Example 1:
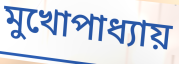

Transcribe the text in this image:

মুখোপাধ্যায়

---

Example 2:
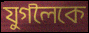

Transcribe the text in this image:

যুগলৈকে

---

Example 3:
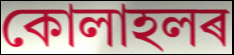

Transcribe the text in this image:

কোলাহলৰ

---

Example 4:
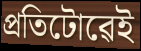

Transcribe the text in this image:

প্ৰতিটোৱেই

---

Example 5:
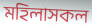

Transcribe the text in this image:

মহিলাসকল